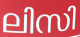
ലിസി